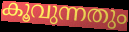
കൂവുന്നതും